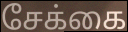
சேக்கை